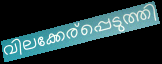
വിലക്കേര്പ്പെടുത്തി